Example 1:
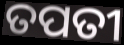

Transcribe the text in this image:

ତପତୀ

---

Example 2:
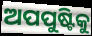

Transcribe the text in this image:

ଅପପୁଷ୍ଟିକୁ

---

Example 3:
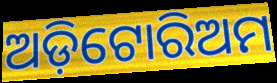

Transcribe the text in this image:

ଅଡ଼ିଟୋରିଅମ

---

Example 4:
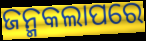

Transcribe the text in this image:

ଜନ୍ମକଲାପରେ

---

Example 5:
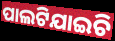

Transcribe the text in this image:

ପାଲଟିଯାଇଚି